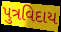
પુત્રવિદાય